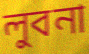
লুবনা